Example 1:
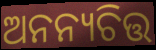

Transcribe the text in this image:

ଅନନ୍ୟଚିତ୍ତ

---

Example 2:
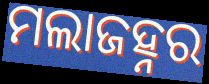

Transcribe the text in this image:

ମଲାଜହ୍ନର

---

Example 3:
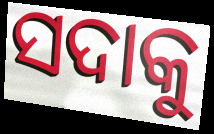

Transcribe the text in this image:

ସଦାକୁ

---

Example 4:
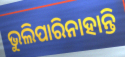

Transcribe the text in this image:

ଭୁଲିପାରିନାହାନ୍ତି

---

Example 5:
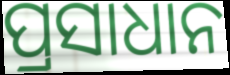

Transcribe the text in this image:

ପ୍ରସାଧାନ